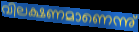
വിലക്ഷണമാണെന്നു്